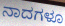
ನಾದಗಳೂ